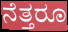
ನೆತ್ತರೂ